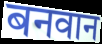
बनवान